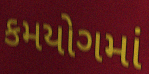
કમયોગમાં